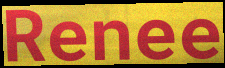
Renee